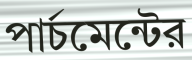
পার্চমেন্টের